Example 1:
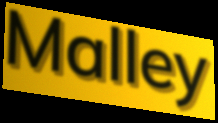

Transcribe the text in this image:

Malley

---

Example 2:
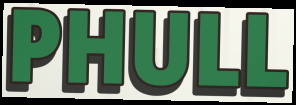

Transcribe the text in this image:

PHULL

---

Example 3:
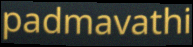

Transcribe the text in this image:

padmavathi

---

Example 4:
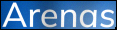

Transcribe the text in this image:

Arenas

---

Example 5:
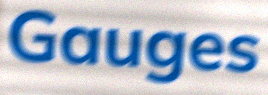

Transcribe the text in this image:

Gauges